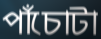
পাঁচোটা